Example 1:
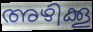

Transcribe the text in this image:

അഴിക്കൂ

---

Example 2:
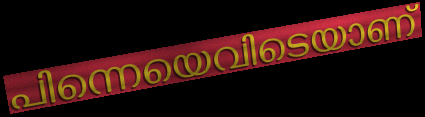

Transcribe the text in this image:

പിന്നെയെവിടെയാണ്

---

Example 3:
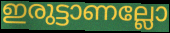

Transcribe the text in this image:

ഇരുട്ടാണല്ലോ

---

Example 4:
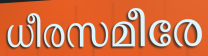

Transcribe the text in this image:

ധീരസമീരേ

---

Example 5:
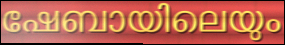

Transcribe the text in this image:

ഷേബായിലെയും